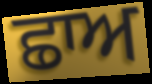
ਛਾਅ